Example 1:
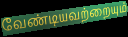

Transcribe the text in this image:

வேண்டியவற்றையும்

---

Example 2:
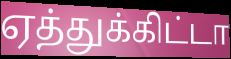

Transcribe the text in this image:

ஏத்துக்கிட்டா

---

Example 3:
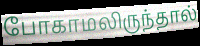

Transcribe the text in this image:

போகாமலிருந்தால்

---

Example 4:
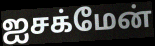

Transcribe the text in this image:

ஐசக்மேன்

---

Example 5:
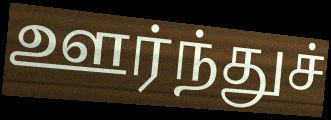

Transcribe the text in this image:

ஊர்ந்துச்